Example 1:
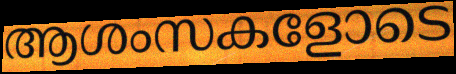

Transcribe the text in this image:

ആശംസകളോടെ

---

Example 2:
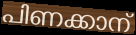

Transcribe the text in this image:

പിണക്കാന്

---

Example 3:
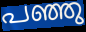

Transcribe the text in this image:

പഞ്ഞു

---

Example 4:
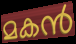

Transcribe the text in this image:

മകൻ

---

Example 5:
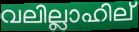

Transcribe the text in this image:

വലില്ലാഹില്